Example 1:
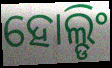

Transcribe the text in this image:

ହୋଲ୍ଡିଂ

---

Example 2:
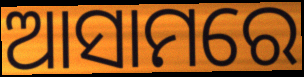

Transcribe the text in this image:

ଆସାମରେ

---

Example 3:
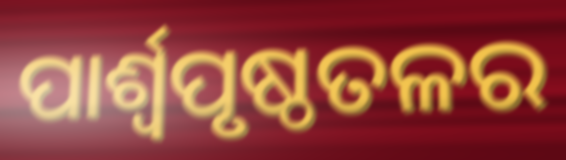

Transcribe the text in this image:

ପାର୍ଶ୍ଵପୃଷ୍ଠତଳର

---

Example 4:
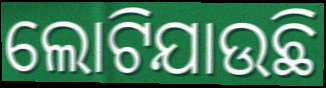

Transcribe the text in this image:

ଲୋଟିଯାଉଛି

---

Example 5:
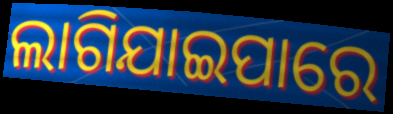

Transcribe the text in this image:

ଲାଗିଯାଇପାରେ